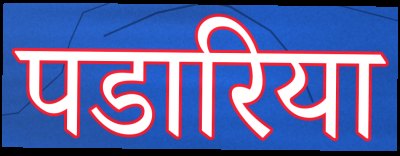
पडारिया